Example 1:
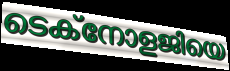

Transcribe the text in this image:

ടെക്‌നോളജിയെ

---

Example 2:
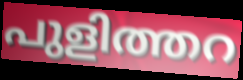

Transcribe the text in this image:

പുളിത്തറ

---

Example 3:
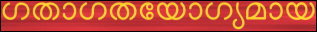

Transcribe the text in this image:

ഗതാഗതയോഗ്യമായ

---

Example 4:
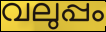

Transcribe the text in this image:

വലുപ്പം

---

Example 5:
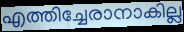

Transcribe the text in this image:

എത്തിച്ചേരാനാകില്ല